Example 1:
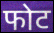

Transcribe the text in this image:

फोट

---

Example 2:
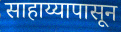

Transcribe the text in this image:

साहाय्यापासून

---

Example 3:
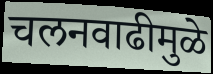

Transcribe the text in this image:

चलनवाढीमुळे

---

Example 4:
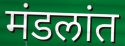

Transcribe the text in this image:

मंडलांत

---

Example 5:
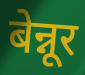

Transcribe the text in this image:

बेन्नूर